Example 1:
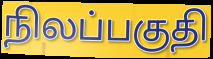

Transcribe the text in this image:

நிலப்பகுதி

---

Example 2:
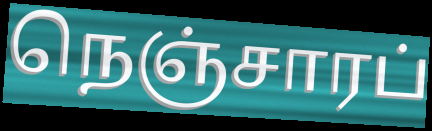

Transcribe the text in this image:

நெஞ்சாரப்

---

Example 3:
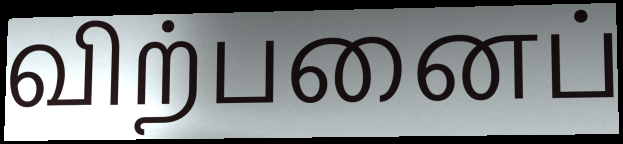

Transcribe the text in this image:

விற்பனைப்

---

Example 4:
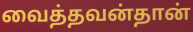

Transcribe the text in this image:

வைத்தவன்தான்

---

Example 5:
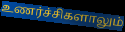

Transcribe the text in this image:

உணர்ச்சிகளாலும்